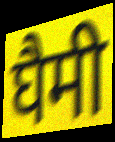
घैमी